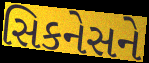
સિકનેસને